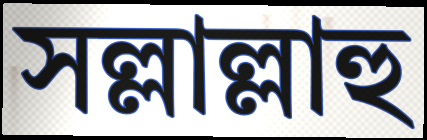
সল্লাল্লাহু